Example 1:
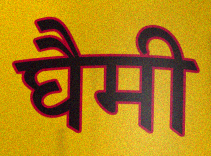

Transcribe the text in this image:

घैमी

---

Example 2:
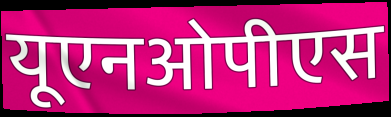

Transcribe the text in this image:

यूएनओपीएस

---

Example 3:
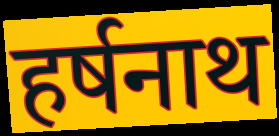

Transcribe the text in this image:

हर्षनाथ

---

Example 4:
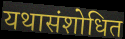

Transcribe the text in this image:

यथासंशोधित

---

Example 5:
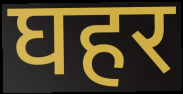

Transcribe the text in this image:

घहर